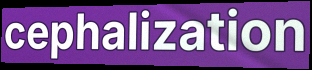
cephalization